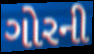
ગોરની